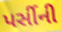
પર્સીની